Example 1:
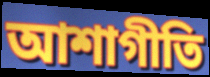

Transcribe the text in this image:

আশাগীতি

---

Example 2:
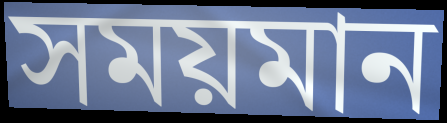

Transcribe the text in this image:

সময়মান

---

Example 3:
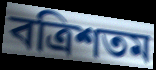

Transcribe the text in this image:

বত্রিশতম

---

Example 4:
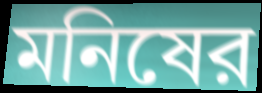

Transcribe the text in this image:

মনিষের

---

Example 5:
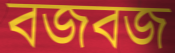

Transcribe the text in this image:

বজবজ